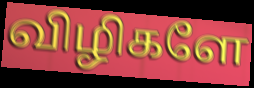
விழிகளே